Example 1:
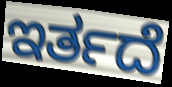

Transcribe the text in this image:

ಇರ್ತದೆ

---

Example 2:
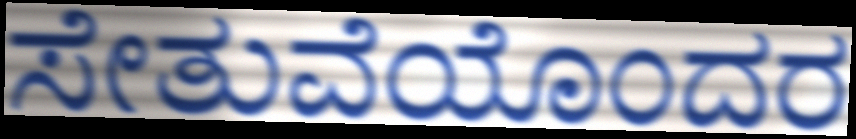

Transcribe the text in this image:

ಸೇತುವೆಯೊಂದರ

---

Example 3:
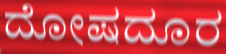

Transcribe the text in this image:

ದೋಷದೂರ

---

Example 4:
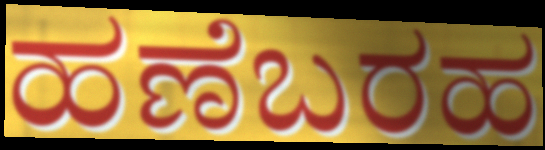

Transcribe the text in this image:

ಹಣೆಬರಹ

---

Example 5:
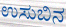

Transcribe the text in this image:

ಉಸುಬಿನ